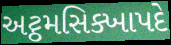
અટ્ઠમસિક્ખાપદે